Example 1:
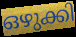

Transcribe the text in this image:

ഒഴുക്കി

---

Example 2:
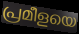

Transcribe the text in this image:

പ്രമീളയെ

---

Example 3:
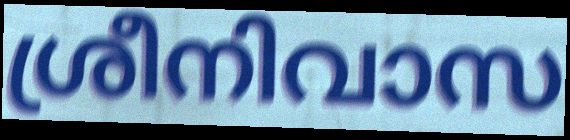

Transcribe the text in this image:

ശ്രീനിവാസ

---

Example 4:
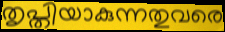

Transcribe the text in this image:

തൃപ്തിയാകുന്നതുവരെ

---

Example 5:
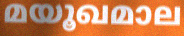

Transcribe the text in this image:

മയൂഖമാല